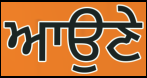
ਆਉਣੇ